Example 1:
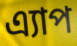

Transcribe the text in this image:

এ্যাপ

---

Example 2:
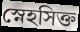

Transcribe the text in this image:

স্নেহসিক্ত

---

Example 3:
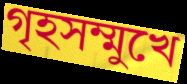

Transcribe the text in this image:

গৃহসম্মুখে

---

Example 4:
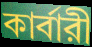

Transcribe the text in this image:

কার্বারী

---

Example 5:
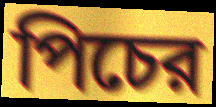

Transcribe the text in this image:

পিচের